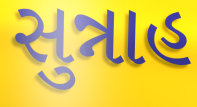
સુન્નાહ